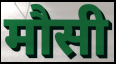
मौसी